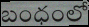
బంధంలో